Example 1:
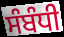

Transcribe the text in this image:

ਸੰਬੰਧੀ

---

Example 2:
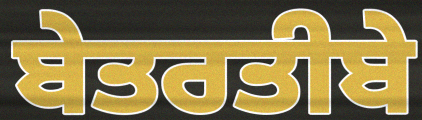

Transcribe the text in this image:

ਬੇਤਰਤੀਬੇ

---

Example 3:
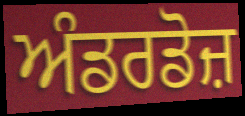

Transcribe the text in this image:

ਅੰਡਰਡੋਜ਼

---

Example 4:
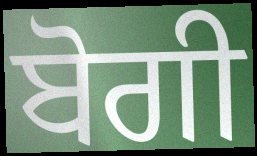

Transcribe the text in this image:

ਬੋਗੀ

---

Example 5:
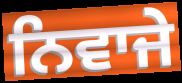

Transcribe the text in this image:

ਨਿਵਾਜੇ